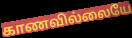
காணவில்லையே